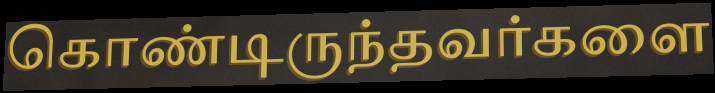
கொண்டிருந்தவர்களை